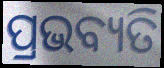
ପ୍ରଭବ୍ୟତି